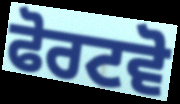
ਫੋਰਟਵੋ